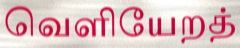
வெளியேறத்